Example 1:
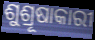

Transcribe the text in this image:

ଶୁଶ୍ରୂଷାକାରୀ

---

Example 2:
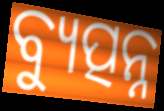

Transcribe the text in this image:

ବ୍ୟୁତ୍ପନ୍ନ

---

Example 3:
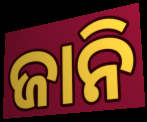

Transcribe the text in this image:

ଜାନି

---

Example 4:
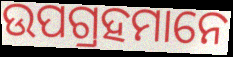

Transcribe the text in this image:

ଉପଗ୍ରହମାନେ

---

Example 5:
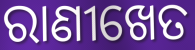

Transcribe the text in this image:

ରାଣୀଖେତ